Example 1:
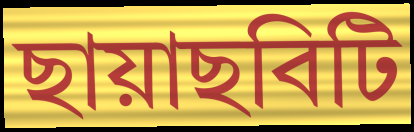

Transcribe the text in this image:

ছায়াছবিটি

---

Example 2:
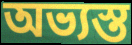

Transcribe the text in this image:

অভ্যস্ত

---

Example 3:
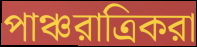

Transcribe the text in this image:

পাঞ্চরাত্রিকরা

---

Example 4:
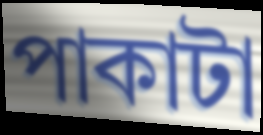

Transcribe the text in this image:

পাকাটা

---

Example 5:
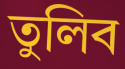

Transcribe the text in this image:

তুলিব